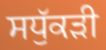
ਸਧੁੱਕੜੀ